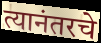
त्यानंतरचे